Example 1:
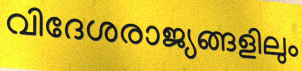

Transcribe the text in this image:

വിദേശരാജ്യങ്ങളിലും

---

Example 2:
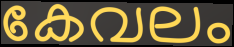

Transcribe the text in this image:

കേവലം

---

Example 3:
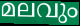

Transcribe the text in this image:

മലവും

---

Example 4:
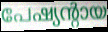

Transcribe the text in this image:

പേഷ്യന്റായ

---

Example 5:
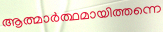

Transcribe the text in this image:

ആത്മാർത്ഥമായിത്തന്നെ